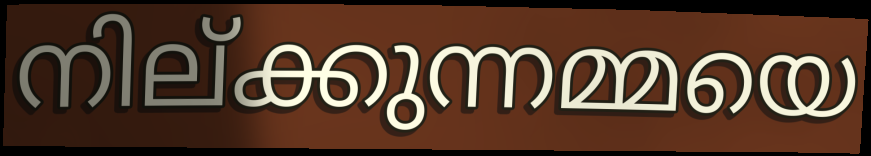
നില്ക്കുന്നമ്മയെ